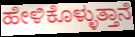
ಹೇಳಿಕೊಳ್ಳುತ್ತಾನೆ